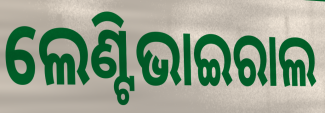
ଲେଣ୍ଟିଭାଇରାଲ